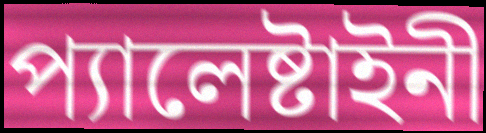
প্যালেষ্টাইনী